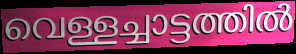
വെള്ളച്ചാട്ടത്തിൽ